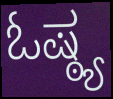
ಓಷ್ಠ್ಯ